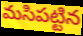
మసిపట్టిన